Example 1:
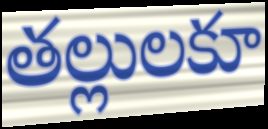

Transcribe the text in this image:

తల్లులకూ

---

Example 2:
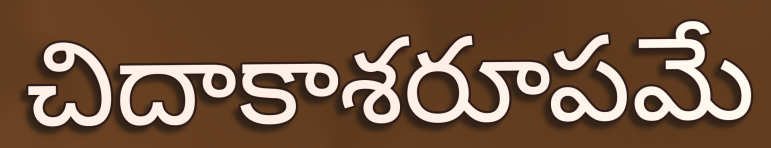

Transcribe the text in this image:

చిదాకాశరూపమే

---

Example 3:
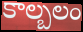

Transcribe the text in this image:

కాల్బలం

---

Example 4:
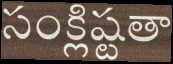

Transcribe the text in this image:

సంక్లిష్టతా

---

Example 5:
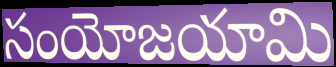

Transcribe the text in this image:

సంయోజయామి